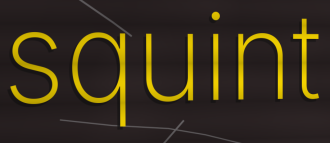
squint